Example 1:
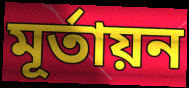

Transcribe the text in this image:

মূর্তায়ন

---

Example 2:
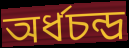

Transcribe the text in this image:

অর্ধচন্দ্র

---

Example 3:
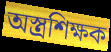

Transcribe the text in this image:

অস্ত্রশিক্ষক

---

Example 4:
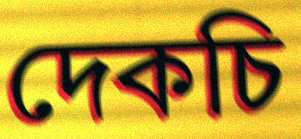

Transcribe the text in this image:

দেকচি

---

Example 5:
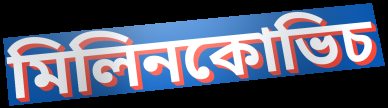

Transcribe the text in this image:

মিলিনকোভিচ